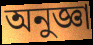
অনুজ্ঞা